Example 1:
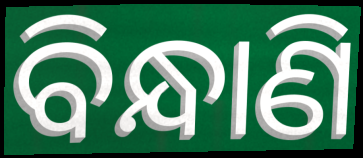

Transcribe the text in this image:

ବିନ୍ଧାଣି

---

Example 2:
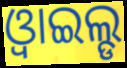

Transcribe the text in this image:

ଓ୍ବାଇଲ୍ଡ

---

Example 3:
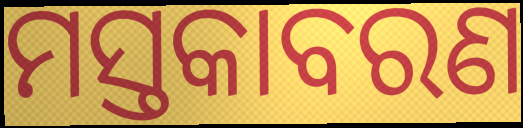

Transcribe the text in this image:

ମସ୍ତକାବରଣ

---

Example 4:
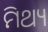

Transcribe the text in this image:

ମିଥ୍ୟ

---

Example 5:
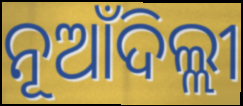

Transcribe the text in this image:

ନୂଆଁଦିଲ୍ଲୀ